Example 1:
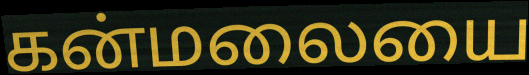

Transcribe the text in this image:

கன்மலையை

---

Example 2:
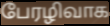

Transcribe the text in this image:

பேரழிவாக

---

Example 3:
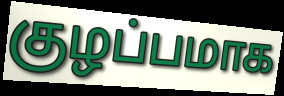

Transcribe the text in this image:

குழப்பமாக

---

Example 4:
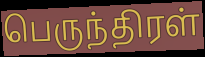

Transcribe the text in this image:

பெருந்திரள்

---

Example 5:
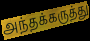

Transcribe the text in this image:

அந்தக்கருத்து